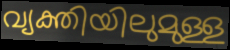
വ്യക്തിയിലുമുള്ള